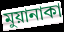
মুয়ানাকা